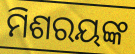
ମିଶରୟଙ୍କ